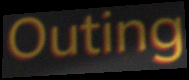
Outing